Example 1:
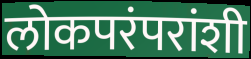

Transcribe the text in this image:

लोकपरंपरांशी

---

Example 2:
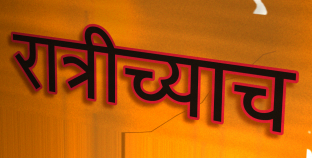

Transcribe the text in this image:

रात्रीच्याच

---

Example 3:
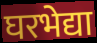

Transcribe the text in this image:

घरभेद्या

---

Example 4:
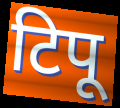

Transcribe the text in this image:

टिपू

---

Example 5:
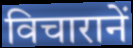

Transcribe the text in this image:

विचारानें